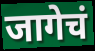
जागेचं